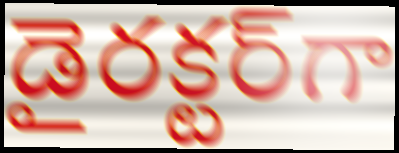
డైరక్టర్‌గా